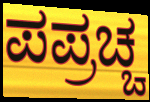
ಪಪ್ರಚ್ಚ